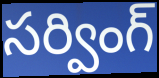
సర్వింగ్